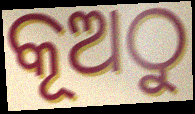
କୂଅଠୁ